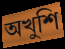
অখুশি